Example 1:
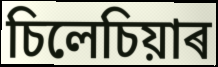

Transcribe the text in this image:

চিলেচিয়াৰ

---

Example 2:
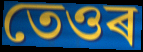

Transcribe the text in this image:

তেওৰ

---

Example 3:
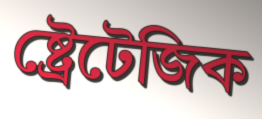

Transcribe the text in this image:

ষ্ট্ৰেটেজিক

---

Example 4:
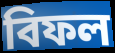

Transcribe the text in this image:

বিফল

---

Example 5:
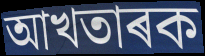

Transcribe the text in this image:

আখতাৰক